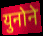
युनोने